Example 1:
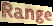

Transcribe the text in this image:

Range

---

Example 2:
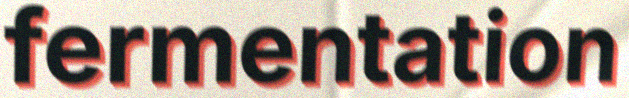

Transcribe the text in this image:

fermentation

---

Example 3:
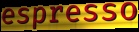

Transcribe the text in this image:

espresso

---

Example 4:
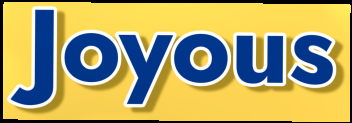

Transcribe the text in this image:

Joyous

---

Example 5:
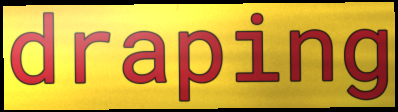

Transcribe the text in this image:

draping